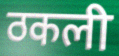
ठकली